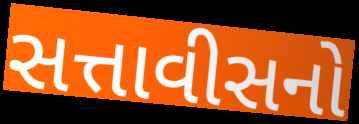
સત્તાવીસનો